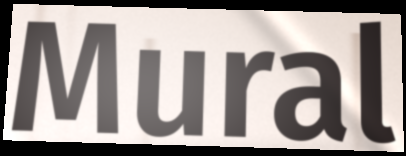
Mural